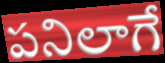
పనిలాగే